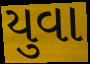
યુવા